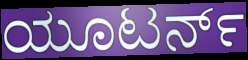
ಯೂಟರ್ನ್